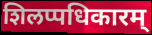
शिलप्पधिकारम्